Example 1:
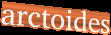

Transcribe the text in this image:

arctoides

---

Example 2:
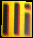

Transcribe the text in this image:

Ili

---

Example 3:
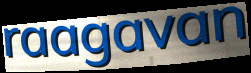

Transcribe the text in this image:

raagavan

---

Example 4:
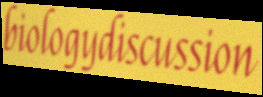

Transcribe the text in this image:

biologydiscussion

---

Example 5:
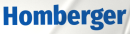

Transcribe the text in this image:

Homberger